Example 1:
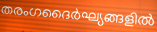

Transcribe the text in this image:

തരംഗദൈർഘ്യങ്ങളിൽ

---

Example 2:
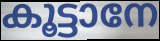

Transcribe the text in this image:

കൂട്ടാനേ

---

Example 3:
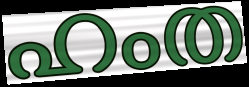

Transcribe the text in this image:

ഹംത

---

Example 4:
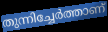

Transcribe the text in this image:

തുന്നിച്ചേർത്താണ്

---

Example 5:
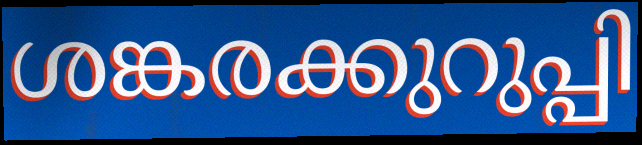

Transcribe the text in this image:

ശങ്കരക്കുറുപ്പി